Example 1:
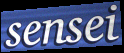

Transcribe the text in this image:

sensei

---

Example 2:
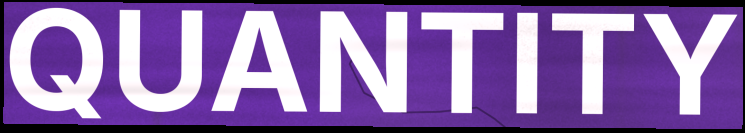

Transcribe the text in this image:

QUANTITY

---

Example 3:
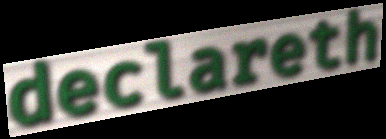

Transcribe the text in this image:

declareth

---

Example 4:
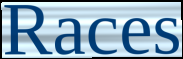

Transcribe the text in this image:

Races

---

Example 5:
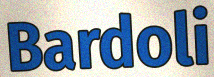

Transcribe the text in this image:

Bardoli